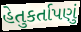
હેતુકર્તાપણું